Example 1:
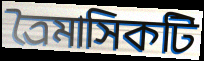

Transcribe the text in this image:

ত্রৈমাসিকটি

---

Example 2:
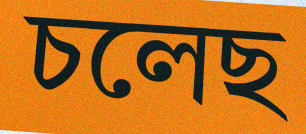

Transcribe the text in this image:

চলেছ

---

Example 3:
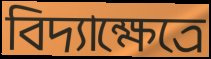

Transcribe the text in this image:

বিদ্যাক্ষেত্রে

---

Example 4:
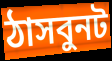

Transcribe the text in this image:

ঠাসবুনট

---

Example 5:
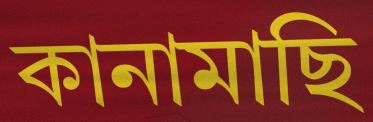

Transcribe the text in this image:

কানামাছি